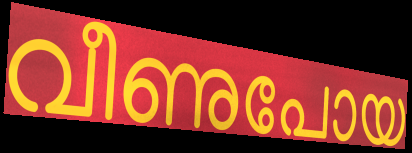
വീണുപോയ